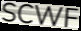
SCWF